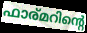
ഫാര്മറിന്റെ